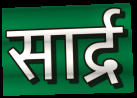
सार्द्र